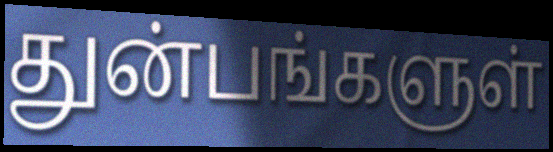
துன்பங்களுள்